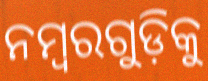
ନମ୍ବରଗୁଡ଼ିକୁ